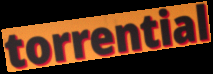
torrential